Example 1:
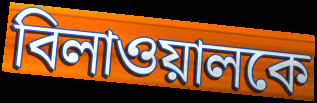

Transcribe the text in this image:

বিলাওয়ালকে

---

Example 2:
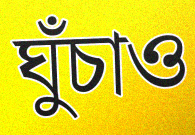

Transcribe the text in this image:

ঘুঁচাও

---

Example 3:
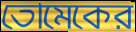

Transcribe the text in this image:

তোমেকের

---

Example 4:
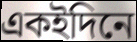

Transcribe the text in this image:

একইদিনে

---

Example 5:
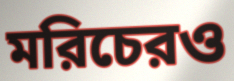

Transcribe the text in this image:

মরিচেরও